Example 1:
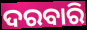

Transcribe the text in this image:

ଦରବାରି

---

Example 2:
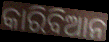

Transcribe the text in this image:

କାରିବିଆନ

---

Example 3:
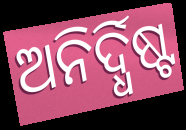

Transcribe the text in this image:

ଅନିର୍ଦ୍ଧିଷ୍ଟ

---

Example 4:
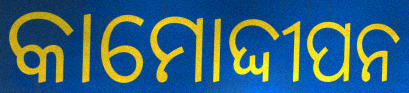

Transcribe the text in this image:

କାମୋଦ୍ଦୀପନ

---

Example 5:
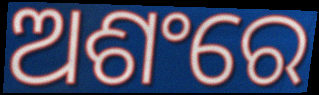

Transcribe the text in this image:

ଅଶଂରେ